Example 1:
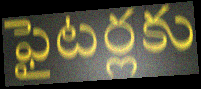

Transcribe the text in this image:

ఫైటర్లకు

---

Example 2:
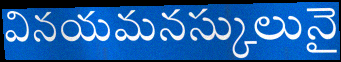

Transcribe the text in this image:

వినయమనస్కులునై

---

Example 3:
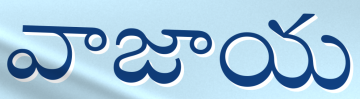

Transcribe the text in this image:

వాజాయ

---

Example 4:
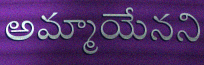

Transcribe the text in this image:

అమ్మాయేనని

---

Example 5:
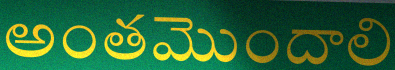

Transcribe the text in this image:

అంతమొందాలి